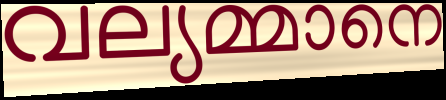
വല്യമ്മാനെ